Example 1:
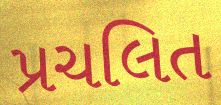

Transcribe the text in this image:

પ્રચલિત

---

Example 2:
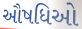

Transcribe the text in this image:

ઔષધિઓ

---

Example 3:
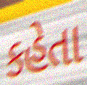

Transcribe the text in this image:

કહેતા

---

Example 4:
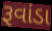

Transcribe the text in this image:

રૂવાંડા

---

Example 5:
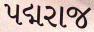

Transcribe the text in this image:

પદ્મરાજ